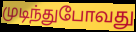
முடிந்துபோவது